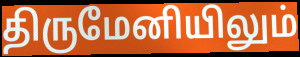
திருமேனியிலும்